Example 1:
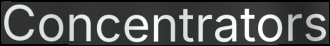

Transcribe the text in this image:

Concentrators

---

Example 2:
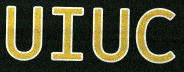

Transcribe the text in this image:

UIUC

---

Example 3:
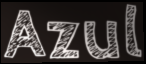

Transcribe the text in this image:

Azul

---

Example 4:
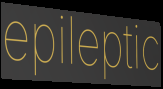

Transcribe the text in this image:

epileptic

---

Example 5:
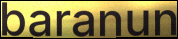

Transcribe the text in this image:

baranun